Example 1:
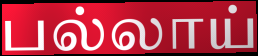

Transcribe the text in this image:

பல்லாய்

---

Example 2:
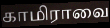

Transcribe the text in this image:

காமிராவை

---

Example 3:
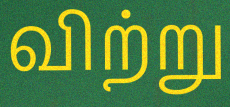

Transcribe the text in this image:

விற்று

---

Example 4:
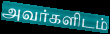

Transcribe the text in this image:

அவர்களிடம்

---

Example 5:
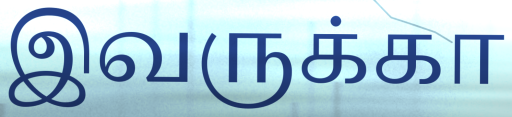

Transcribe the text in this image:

இவருக்கா